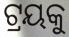
ଟ୍ରୟକୁ